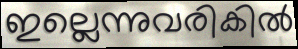
ഇല്ലെന്നുവരികിൽ